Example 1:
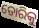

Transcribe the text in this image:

ଡୋରିକୁ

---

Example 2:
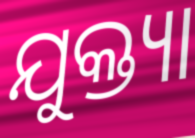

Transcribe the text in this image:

ଯୁକ୍ତ୍ୟା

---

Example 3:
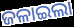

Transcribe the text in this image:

ଜଳାଇଲା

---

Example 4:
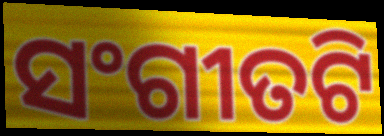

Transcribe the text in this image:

ସଂଗୀତଟି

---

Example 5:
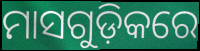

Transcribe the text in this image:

ମାସଗୁଡ଼ିକରେ